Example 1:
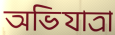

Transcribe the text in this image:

অভিযাত্রা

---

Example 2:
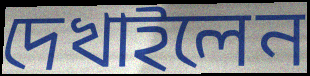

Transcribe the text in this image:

দেখাইলেন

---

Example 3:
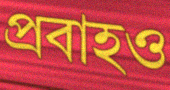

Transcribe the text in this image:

প্রবাহও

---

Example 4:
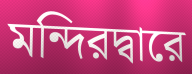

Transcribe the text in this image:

মন্দিরদ্বারে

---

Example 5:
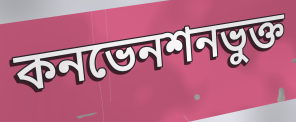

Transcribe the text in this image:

কনভেনশনভুক্ত